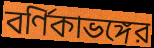
বর্ণিকাভঙ্গের